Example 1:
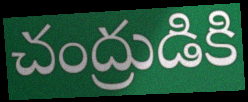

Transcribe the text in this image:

చంద్రుడికి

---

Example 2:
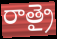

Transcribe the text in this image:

రాత్రై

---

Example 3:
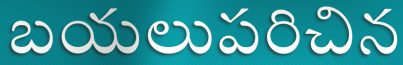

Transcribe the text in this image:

బయలుపరిచిన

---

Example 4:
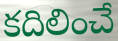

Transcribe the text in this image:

కదిలించే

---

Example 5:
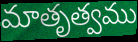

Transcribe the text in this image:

మాతృత్వము